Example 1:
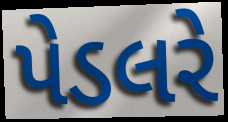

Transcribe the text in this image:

પેડલરે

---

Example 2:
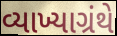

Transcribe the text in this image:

વ્યાખ્યાગ્રંથે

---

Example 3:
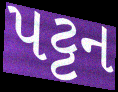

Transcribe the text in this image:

પટ્ટન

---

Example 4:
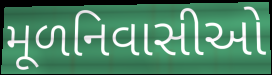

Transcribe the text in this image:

મૂળનિવાસીઓ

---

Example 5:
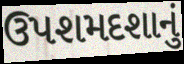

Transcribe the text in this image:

ઉપશમદશાનું